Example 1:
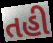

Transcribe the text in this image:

તહી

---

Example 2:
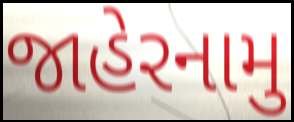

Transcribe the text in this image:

જાહેરનામુ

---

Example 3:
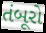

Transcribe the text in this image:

તંબૂરો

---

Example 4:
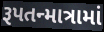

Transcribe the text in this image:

રૂપતન્માત્રામાં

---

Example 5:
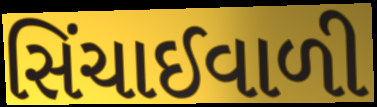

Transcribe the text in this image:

સિંચાઈવાળી